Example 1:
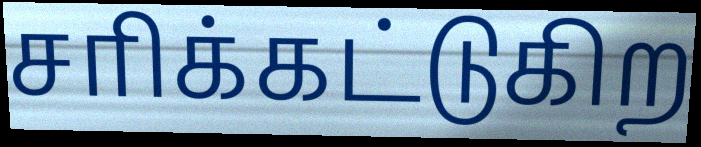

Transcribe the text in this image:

சரிக்கட்டுகிற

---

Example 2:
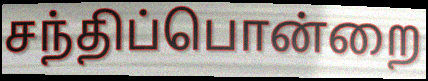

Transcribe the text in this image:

சந்திப்பொன்றை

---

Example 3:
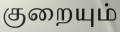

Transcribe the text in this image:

குறையும்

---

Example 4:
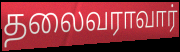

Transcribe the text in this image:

தலைவராவார்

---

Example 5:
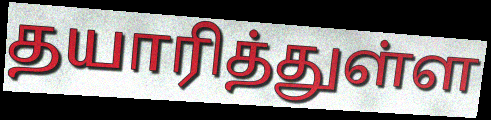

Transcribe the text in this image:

தயாரித்துள்ள